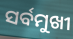
ସର୍ବମୁଖୀ